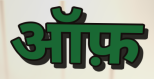
ऑफ़